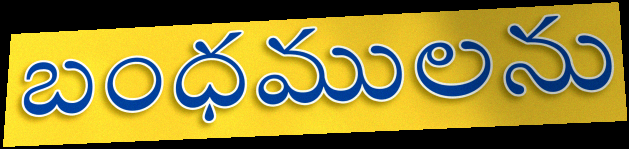
బంధములను